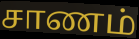
சாணம்